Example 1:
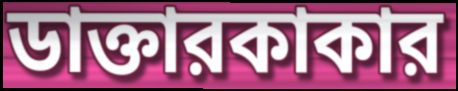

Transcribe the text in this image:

ডাক্তারকাকার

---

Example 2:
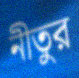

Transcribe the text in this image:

নীতুর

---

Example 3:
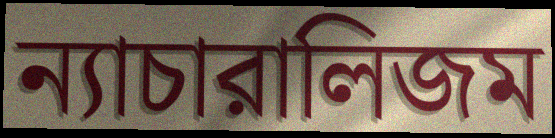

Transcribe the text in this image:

ন্যাচারালিজম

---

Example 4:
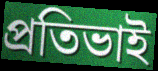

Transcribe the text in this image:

প্রতিভাই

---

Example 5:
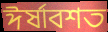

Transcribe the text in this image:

ঈর্ষাবশত